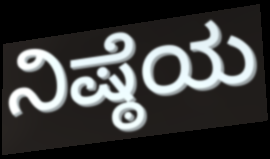
ನಿಷ್ಠೆಯ